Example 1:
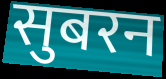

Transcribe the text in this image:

सुबरन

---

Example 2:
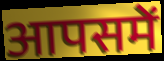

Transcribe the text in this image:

आपसमें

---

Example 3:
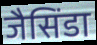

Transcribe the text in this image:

जैसिंडा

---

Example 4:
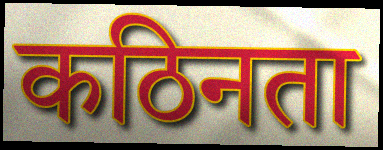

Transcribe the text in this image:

कठिनता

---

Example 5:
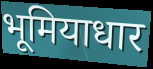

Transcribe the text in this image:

भूमियाधार